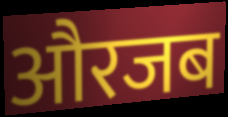
औरजब